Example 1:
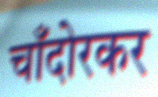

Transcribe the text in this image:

चाँदोरकर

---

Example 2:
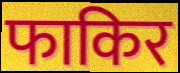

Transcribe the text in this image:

फाकिर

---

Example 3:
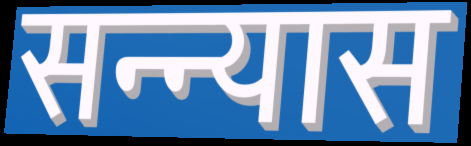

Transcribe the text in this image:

सन्न्यास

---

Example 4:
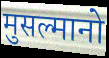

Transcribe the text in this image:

मुसल्मानो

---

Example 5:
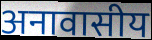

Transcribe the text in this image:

अनावासीय